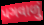
પગવાળું